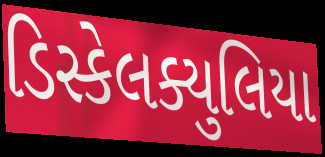
ડિસ્કેલક્યુલિયા